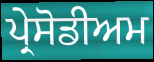
ਪ੍ਰੇਸੋਡੀਅਮ